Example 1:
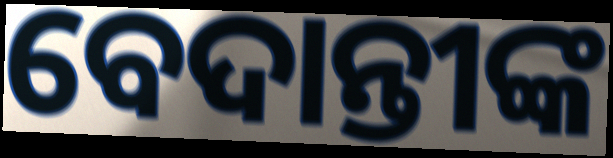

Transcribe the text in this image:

ବେଦାନ୍ତୀଙ୍କ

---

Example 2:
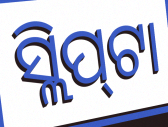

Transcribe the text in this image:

ସ୍ଲିପ୍‌ଟା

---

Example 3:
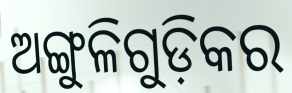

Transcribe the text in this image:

ଅଙ୍ଗୁଳିଗୁଡ଼ିକର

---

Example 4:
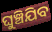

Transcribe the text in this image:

ଘୁଞ୍ଚିଯିବ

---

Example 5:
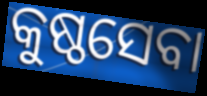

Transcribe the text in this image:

କୁଷ୍ଠସେବା